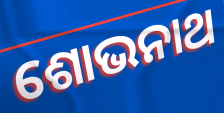
ଶୋଭନାଥ